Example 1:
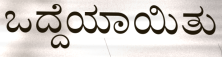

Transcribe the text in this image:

ಒದ್ದೆಯಾಯಿತು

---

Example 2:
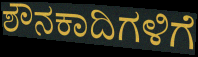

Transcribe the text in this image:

ಶೌನಕಾದಿಗಳಿಗೆ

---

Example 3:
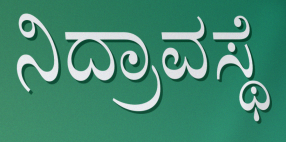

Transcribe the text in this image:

ನಿದ್ರಾವಸ್ಥೆ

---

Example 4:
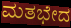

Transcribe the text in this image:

ಮತಭೇದ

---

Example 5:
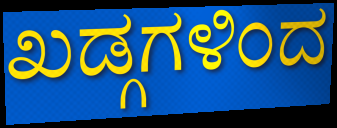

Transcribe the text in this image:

ಖಡ್ಗಗಳಿಂದ